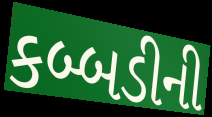
કબ્બડીની